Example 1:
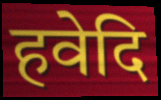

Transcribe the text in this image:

हवेदि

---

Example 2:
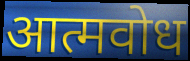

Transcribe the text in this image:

आत्मवोध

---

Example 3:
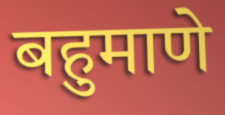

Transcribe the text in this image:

बहुमाणे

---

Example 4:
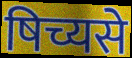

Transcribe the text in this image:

षिच्यसे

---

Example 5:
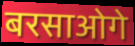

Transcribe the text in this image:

बरसाओगे